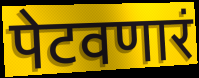
पेटवणारं